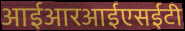
आईआरआईएसईटी